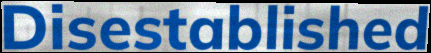
Disestablished